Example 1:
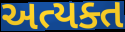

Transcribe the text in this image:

અત્યક્ત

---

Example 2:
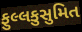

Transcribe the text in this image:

ફુલ્લકુસુમિત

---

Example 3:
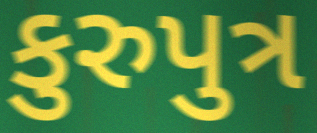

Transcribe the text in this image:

કુરુપુત્ર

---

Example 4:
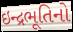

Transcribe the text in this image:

ઇન્દ્રભૂતિનો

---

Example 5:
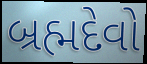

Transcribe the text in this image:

બ્રહ્મદેવો